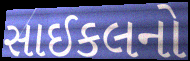
સાઈકલનો